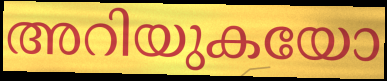
അറിയുകയോ